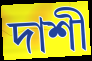
দাশী